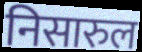
निसारुल